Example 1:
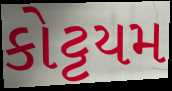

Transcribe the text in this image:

કોટ્ટયમ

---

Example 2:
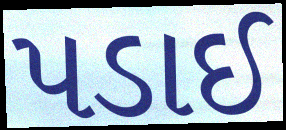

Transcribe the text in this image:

પડાઈ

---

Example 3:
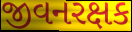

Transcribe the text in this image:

જીવનરક્ષક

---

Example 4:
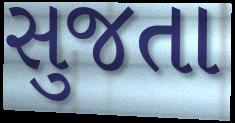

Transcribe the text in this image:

સુજતા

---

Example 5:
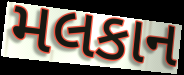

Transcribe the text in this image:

મલકાન